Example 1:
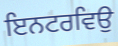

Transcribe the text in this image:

ਇਨਟਰਵਿਉ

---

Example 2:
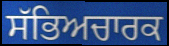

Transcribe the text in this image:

ਸੱਭਿਅਚਾਰਕ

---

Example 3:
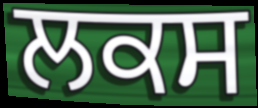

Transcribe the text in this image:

ਲਕਸ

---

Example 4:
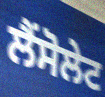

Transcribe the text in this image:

ਲੈਂਸੋਲੇਟ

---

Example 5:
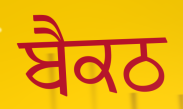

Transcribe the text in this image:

ਬੈਕਠ